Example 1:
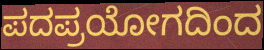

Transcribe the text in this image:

ಪದಪ್ರಯೋಗದಿಂದ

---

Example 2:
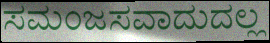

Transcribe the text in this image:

ಸಮಂಜಸವಾದುದಲ್ಲ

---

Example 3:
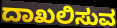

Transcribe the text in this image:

ದಾಖಲಿಸುವ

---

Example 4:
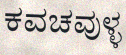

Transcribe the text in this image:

ಕವಚವುಳ್ಳ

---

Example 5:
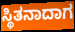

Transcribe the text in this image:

ಸ್ಥಿತನಾದಾಗ